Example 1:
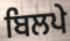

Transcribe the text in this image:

ਬਿਲਪੇ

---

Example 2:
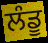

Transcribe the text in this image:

ਲੰਡੂ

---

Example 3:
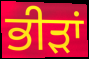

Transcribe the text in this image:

ਭੀੜਾਂ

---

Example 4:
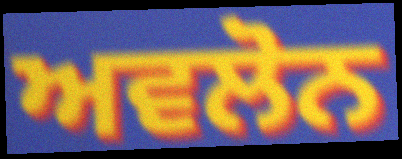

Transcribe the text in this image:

ਅਵਲੋਨ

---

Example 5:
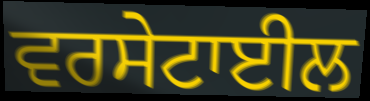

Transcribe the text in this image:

ਵਰਸੇਟਾਈਲ